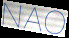
NAO